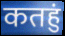
कतहुं